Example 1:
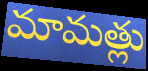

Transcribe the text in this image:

మామత్లు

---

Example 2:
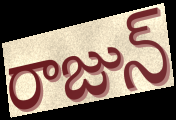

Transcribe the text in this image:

రాజున్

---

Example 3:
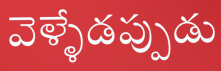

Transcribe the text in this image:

వెళ్ళేడప్పుడు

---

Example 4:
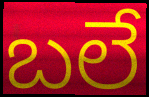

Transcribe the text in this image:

బలే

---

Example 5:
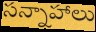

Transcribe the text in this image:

సన్నాహాలు